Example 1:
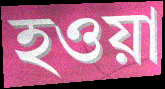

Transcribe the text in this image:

হওয়া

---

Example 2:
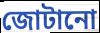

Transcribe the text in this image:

জোটানো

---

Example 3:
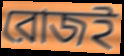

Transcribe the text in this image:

রোজই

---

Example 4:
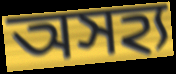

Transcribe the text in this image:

অসহ্য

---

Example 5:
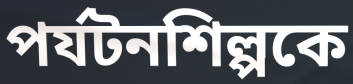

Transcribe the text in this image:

পর্যটনশিল্পকে